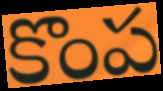
కొంప